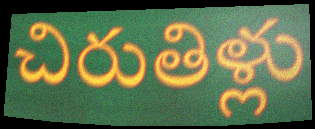
చిరుతిళ్లు